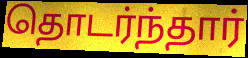
தொடர்ந்தார்